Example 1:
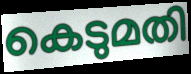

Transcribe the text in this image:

കെടുമതി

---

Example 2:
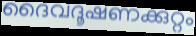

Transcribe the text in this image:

ദൈവദൂഷണക്കുറ്റം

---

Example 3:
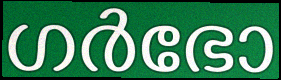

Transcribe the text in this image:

ഗർഭോ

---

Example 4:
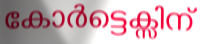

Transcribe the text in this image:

കോർട്ടെക്സിന്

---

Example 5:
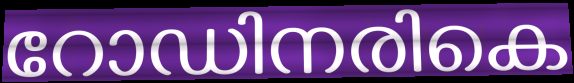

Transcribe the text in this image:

റോഡിനരികെ